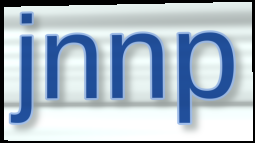
jnnp